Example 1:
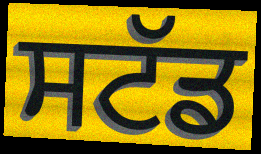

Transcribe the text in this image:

ਸਟੱਡ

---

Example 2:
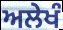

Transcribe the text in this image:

ਅਲੇਖੰ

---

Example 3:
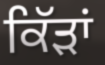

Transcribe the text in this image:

ਕਿੱੜਾਂ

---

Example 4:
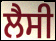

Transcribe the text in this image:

ਲੈਸੀ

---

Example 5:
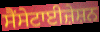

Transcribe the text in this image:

ਸੈਂਸੇਟਾਈਜ਼ੇਸ਼ਨ